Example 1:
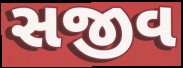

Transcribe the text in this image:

સજીવ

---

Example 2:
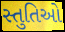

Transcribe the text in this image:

સ્તુતિઓ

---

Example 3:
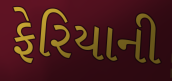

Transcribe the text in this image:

ફેરિયાની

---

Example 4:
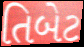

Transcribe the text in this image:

તિબેટ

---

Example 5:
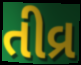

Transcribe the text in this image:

તીવ્ર